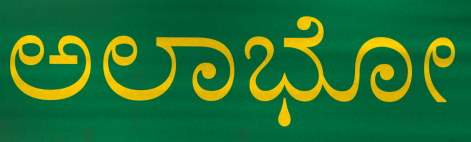
ಅಲಾಭೋ